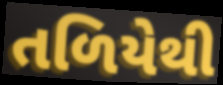
તળિયેથી